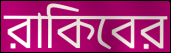
রাকিবের